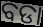
ବଡା